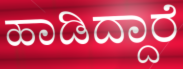
ಹಾಡಿದ್ದಾರೆ